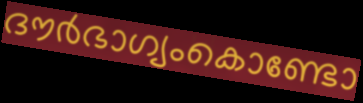
ദൗർഭാഗ്യംകൊണ്ടോ